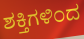
ಶಕ್ತಿಗಳಿಂದ